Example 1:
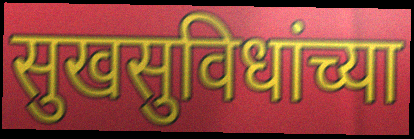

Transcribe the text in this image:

सुखसुविधांच्या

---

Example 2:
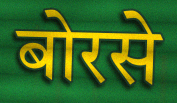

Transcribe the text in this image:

बोरसे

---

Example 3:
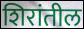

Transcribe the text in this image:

शिरांतील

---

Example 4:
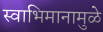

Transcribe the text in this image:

स्वाभिमानामुळे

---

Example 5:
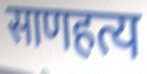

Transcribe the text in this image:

साणहत्य